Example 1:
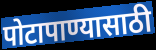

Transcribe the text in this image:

पोटापाण्यासाठी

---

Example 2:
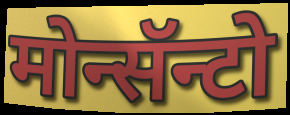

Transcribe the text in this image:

मोन्सॅन्टो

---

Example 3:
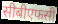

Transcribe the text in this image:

सीबीएफसी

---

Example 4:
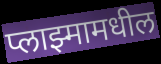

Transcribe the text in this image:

प्लाझ्मामधील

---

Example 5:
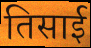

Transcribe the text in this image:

तिसाई